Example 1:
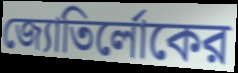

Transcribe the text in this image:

জ্যোতির্লোকের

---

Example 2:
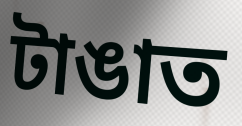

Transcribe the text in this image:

টাঙাত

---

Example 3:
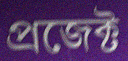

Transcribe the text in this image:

প্রজেক্ট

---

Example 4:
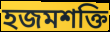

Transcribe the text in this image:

হজমশক্তি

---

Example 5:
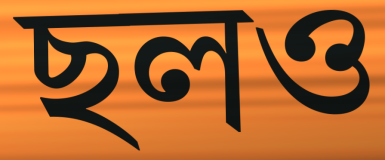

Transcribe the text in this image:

ছলও